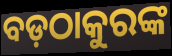
ବଡ଼ଠାକୁରଙ୍କ